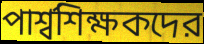
পার্শ্বশিক্ষকদের